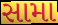
સામા